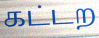
கட்டற